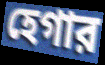
হেগার